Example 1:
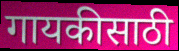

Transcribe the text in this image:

गायकीसाठी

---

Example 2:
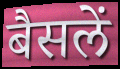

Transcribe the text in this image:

बैसलें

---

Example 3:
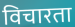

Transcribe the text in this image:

विचारता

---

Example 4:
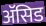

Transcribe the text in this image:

ॲसिड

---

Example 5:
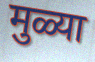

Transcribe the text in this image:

मुळ्या